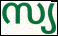
സ്യ